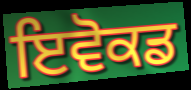
ਇਵੋਕਡ